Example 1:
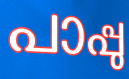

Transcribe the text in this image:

പാപ്പു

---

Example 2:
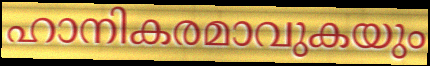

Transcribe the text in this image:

ഹാനികരമാവുകയും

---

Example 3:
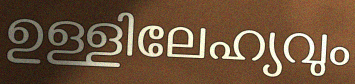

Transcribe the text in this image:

ഉള്ളിലേഹ്യവും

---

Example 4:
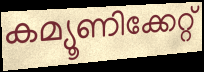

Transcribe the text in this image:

കമ്യൂണിക്കേറ്റ്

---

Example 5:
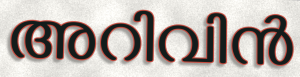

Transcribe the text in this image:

അറിവിൻ